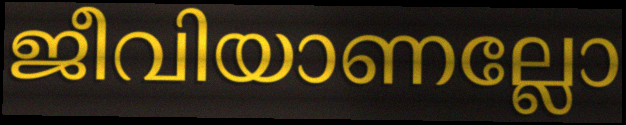
ജീവിയാണല്ലോ